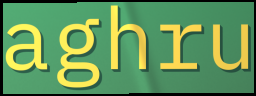
aghru